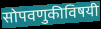
सोपवणुकीविषयी